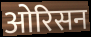
ओरिसन